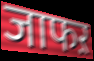
जाफऱ